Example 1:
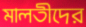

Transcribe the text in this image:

মালতীদের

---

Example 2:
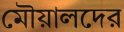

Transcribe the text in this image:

মৌয়ালদের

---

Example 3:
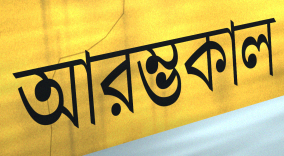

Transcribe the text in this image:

আরম্ভকাল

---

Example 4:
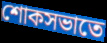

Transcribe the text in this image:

শোকসভাতে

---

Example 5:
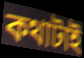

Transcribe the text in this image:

কথাটাই